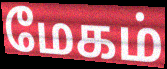
மேகம்